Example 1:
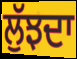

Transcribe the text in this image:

ਲੁੱਝਦਾ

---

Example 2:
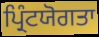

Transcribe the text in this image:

ਪ੍ਰਿੰਟਯੋਗਤਾ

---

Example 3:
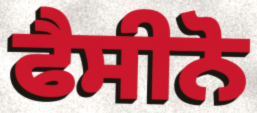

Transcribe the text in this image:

ਫੈਸੀਨੋ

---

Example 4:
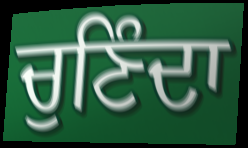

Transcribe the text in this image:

ਚੁਣਿੰਦਾ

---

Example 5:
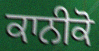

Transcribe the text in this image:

ਕਾਨੀਕੋ